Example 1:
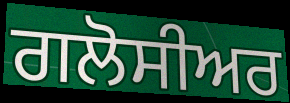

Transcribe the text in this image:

ਗਲੋਸੀਅਰ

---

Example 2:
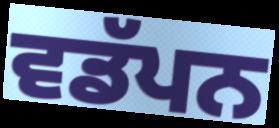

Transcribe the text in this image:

ਵਡੱਪਨ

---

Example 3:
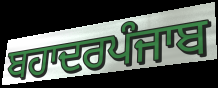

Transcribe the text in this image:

ਬਹਾਦਰਪੰਜਾਬ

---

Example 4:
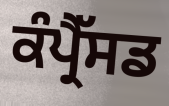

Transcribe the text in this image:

ਕੰਪ੍ਰੈੱਸਡ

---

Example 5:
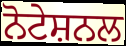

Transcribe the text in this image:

ਨੋਟੇਸ਼ਨਲ